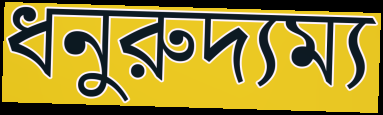
ধনুরুদ্যম্য